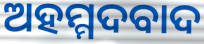
ଅହମ୍ମଦବାଦ